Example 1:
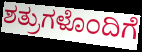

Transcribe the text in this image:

ಶತ್ರುಗಳೊಂದಿಗೆ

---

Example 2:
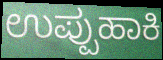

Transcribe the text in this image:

ಉಪ್ಪುಹಾಕಿ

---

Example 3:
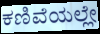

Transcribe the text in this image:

ಕಣಿವೆಯಲ್ಲೇ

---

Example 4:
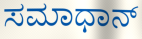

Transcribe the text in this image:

ಸಮಾಧಾನ್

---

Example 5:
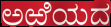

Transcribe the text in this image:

ಅಱಿಯದ